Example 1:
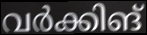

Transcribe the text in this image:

വർക്കിങ്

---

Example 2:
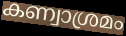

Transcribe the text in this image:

കണ്വാശ്രമം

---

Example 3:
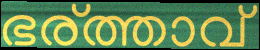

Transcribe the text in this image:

ഭര്ത്താവ്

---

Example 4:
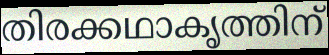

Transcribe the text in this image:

തിരക്കഥാകൃത്തിന്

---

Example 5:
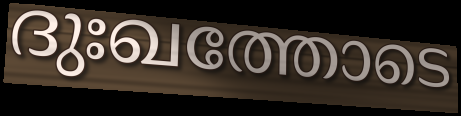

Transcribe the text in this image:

ദുഃഖത്തോടെ